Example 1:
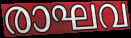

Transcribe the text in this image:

രാഘവ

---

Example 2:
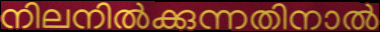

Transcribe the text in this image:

നിലനിൽക്കുന്നതിനാൽ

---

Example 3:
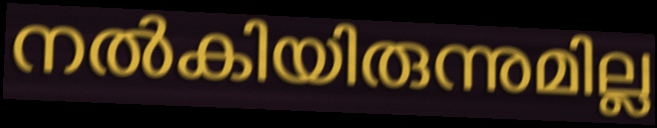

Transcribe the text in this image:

നൽകിയിരുന്നുമില്ല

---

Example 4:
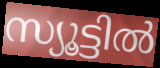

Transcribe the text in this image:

സ്യൂട്ടിൽ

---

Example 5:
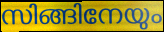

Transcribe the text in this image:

സിങ്ങിനേയും